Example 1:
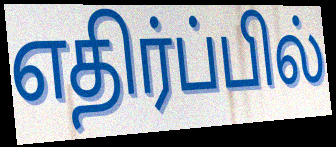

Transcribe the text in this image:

எதிர்ப்பில்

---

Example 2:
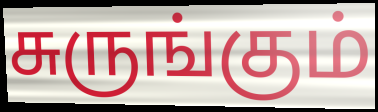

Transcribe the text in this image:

சுருங்கும்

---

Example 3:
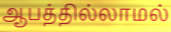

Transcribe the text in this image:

ஆபத்தில்லாமல்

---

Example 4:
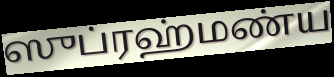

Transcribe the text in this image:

ஸுப்ரஹ்மண்ய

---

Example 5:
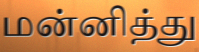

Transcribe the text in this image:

மன்னித்து